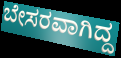
ಬೇಸರವಾಗಿದ್ದ